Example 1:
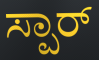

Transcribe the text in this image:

ಸ್ಪಾರ್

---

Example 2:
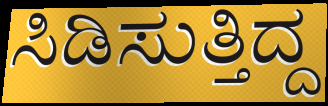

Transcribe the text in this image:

ಸಿಡಿಸುತ್ತಿದ್ದ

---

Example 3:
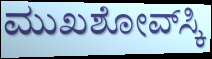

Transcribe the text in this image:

ಮುಖಶೋವ್‌ಸ್ಕಿ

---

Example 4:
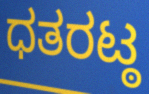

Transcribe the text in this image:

ಧತರಟ್ಠ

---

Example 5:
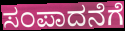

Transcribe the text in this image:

ಸಂಪಾದನೆಗೆ